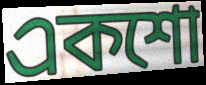
একশো